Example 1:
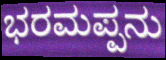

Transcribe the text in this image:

ಭರಮಪ್ಪನು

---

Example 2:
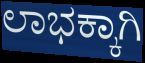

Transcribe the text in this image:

ಲಾಭಕ್ಕಾಗಿ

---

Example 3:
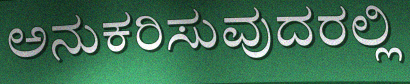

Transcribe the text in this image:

ಅನುಕರಿಸುವುದರಲ್ಲಿ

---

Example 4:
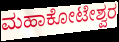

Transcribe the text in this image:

ಮಹಾಕೋಟೇಶ್ವರ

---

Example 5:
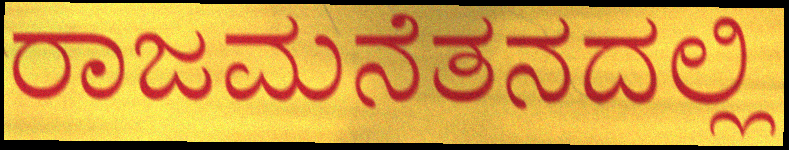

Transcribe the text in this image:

ರಾಜಮನೆತನದಲ್ಲಿ